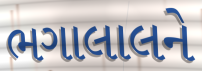
ભગાલાલને